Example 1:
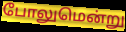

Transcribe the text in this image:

போலுமென்று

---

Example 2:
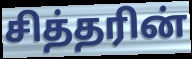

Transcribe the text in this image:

சித்தரின்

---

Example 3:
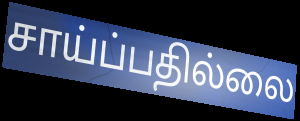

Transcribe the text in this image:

சாய்ப்பதில்லை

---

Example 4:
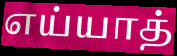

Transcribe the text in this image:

எய்யாத்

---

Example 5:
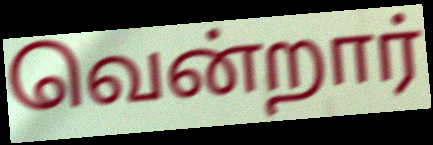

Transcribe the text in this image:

வென்றார்